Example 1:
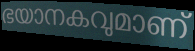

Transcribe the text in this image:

ഭയാനകവുമാണ്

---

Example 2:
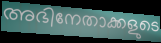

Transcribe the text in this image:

അഭിനേതാക്കളുടെ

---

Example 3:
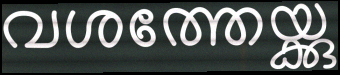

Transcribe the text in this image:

വശത്തേയ്ക്കു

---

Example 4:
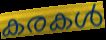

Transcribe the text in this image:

കരകൾ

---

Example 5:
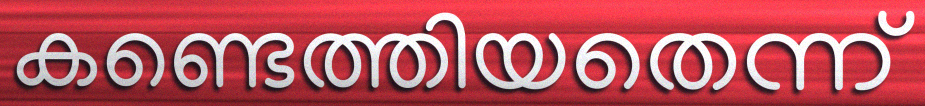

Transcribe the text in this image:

കണ്ടെത്തിയതെന്ന്